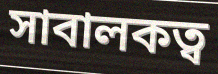
সাবালকত্ব